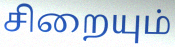
சிறையும்